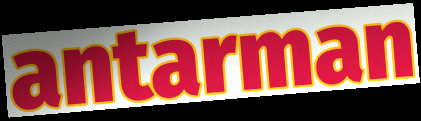
antarman